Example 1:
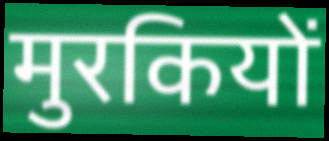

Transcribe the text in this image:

मुरकियों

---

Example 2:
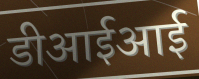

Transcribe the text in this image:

डीआईआई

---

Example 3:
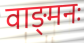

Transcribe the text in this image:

वाङ्मनः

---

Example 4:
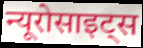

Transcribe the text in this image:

न्यूरोसाइट्स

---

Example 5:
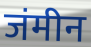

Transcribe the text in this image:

जंमीन